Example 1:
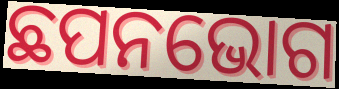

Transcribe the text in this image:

ଛପନଭୋଗ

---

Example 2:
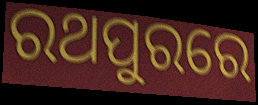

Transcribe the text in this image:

ରଥପୁରରେ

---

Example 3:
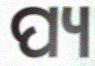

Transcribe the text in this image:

ପ୍ୟ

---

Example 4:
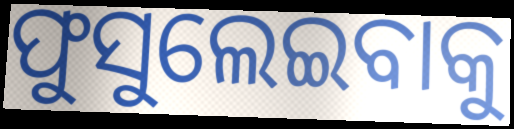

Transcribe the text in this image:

ଫୁସୁଲେଇବାକୁ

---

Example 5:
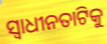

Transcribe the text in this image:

ସ୍ୱାଧୀନତାଟିକୁ